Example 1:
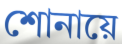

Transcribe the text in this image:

শোনায়ে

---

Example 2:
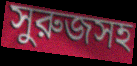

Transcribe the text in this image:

সুরুজসহ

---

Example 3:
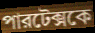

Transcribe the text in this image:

পারটেক্সকে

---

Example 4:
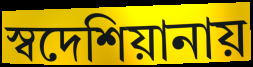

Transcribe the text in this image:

স্বদেশিয়ানায়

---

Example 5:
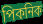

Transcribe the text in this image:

পিকনিক